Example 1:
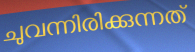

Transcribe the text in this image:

ചുവന്നിരിക്കുന്നത്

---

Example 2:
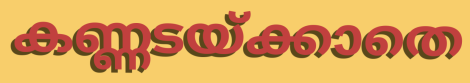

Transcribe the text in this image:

കണ്ണടയ്ക്കാതെ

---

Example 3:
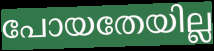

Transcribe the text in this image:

പോയതേയില്ല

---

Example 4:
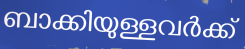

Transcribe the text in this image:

ബാക്കിയുള്ളവർക്ക്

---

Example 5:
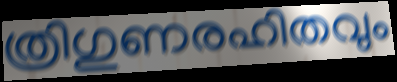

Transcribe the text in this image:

ത്രിഗുണരഹിതവും